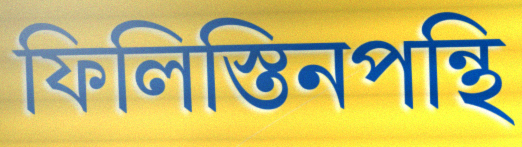
ফিলিস্তিনপন্থি